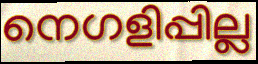
നെഗളിപ്പില്ല